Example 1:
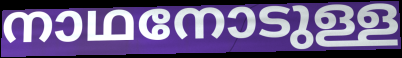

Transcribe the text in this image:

നാഥനോടുള്ള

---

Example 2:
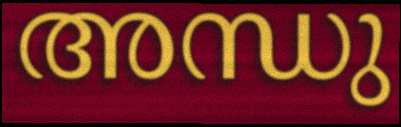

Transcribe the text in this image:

അന്ധു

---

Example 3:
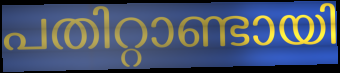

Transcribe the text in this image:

പതിറ്റാണ്ടായി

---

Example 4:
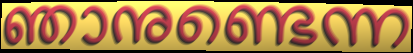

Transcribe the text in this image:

ഞാനുണ്ടെന്ന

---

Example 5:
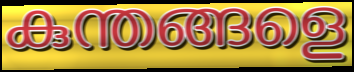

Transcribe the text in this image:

കുന്തങ്ങളെ